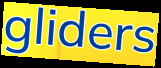
gliders